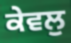
ਕੇਵਲੁ